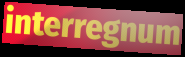
interregnum